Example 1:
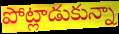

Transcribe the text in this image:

పోట్లాడుకున్నా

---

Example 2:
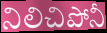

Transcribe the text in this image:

నిలిచిపోనీ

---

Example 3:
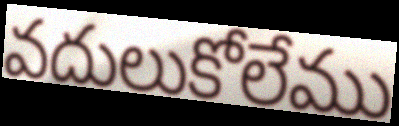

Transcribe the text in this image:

వదులుకోలేము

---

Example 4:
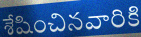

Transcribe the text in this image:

శేషించినవారికి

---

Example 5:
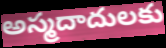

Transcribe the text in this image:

అస్మదాదులకు